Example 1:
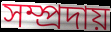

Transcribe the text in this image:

সম্প্রদায়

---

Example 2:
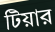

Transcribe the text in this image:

টিয়ার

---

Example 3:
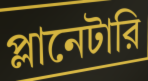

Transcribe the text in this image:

প্লানেটারি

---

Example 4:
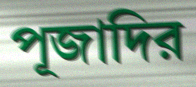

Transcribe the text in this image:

পূজাদির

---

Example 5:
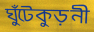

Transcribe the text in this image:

ঘুঁটেকুড়নী